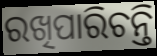
ରଖିପାରିଚନ୍ତି